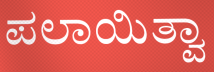
ಪಲಾಯಿತ್ವಾ